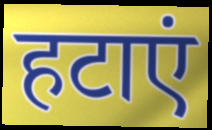
हटाएं